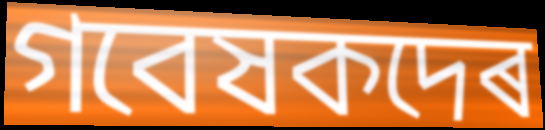
গবেষকদেৰ